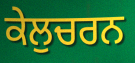
ਕੇਲੁਚਰਨ